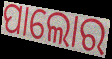
ପାଲୋର